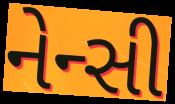
નેન્સી